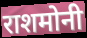
राशमोनी